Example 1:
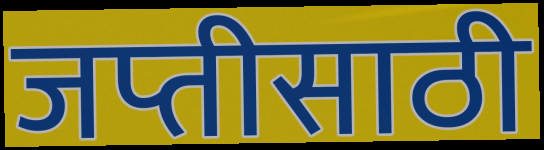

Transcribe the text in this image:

जप्तीसाठी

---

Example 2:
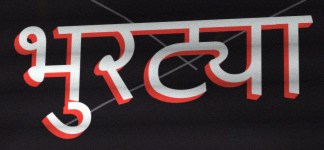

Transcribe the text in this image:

भुरट्या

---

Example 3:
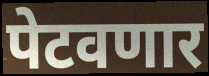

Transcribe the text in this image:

पेटवणार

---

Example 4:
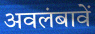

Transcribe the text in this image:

अवलंबावें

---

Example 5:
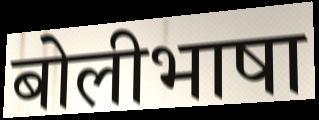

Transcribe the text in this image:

बोलीभाषा